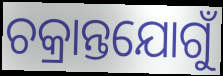
ଚକ୍ରାନ୍ତଯୋଗୁଁ